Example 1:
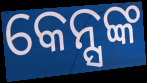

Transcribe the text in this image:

କେନ୍ସଙ୍କ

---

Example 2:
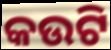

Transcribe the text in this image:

କଉଟି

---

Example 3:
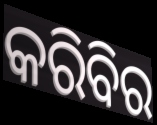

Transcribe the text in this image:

କରିବିର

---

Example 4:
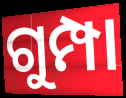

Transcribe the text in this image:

ଗୁମ୍ପା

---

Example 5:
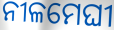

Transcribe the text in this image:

ନୀଳମେଘୀ